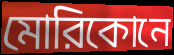
মোরিকোনে